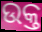
ଉକ୍ତ